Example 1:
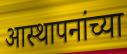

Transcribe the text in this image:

आस्थापनांच्या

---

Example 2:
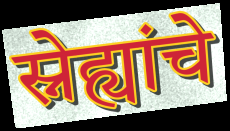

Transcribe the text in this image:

स्नेह्यांचे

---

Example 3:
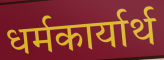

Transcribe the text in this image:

धर्मकार्यार्थ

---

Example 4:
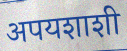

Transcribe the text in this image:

अपयशाशी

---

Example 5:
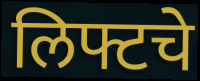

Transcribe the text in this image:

लिफ्टचे